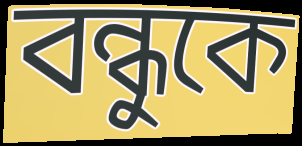
বন্ধুকে